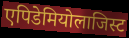
एपिडेमियोलाजिस्ट